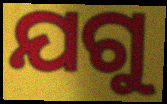
ଯଗୁ